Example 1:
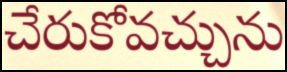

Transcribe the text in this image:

చేరుకోవచ్చును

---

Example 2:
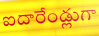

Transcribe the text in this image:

ఐదారేండ్లుగా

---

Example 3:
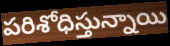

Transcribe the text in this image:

పరిశోధిస్తున్నాయి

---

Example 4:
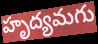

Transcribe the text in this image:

హృద్యమగు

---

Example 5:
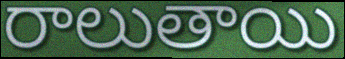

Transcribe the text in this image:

రాలుతాయి